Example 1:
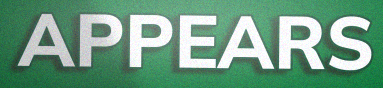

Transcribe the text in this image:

APPEARS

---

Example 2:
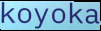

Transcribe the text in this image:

koyoka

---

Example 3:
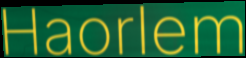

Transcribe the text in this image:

Haorlem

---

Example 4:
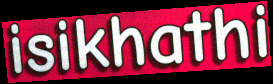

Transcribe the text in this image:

isikhathi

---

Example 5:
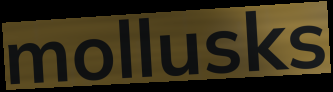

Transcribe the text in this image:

mollusks